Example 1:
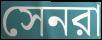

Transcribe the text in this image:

সেনরা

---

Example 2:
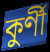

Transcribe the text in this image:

কুর্ণী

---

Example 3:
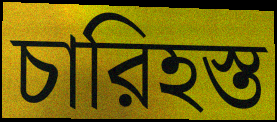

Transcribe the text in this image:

চারিহস্ত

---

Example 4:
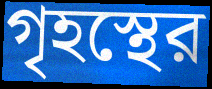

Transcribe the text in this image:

গৃহস্থের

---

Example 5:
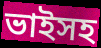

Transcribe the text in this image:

ভাইসহ